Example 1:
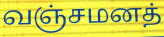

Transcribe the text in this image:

வஞ்சமனத்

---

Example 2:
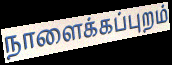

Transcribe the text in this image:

நாளைக்கப்புறம்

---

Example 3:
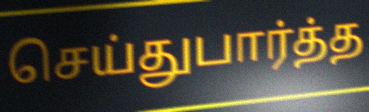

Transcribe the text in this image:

செய்துபார்த்த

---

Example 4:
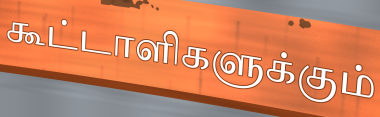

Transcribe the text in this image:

கூட்டாளிகளுக்கும்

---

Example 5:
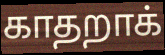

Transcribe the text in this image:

காதறாக்